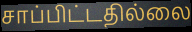
சாப்பிட்டதில்லை